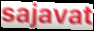
sajavat